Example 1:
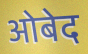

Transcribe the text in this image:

ओबेद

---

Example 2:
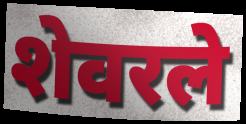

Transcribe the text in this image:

शेवरले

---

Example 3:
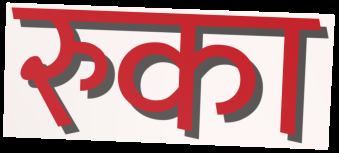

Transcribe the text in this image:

रुका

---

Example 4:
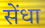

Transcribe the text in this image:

सेंधा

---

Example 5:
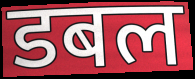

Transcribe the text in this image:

डबल